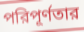
পরিপূর্ণতার